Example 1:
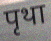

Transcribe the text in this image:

पृथा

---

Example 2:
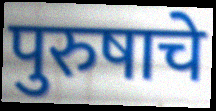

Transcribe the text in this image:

पुरुषाचे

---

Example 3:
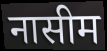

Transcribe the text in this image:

नासीम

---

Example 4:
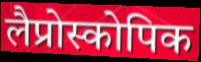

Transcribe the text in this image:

लैप्रोस्कोपिक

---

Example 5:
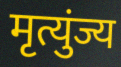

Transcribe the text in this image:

मृत्युंज्य